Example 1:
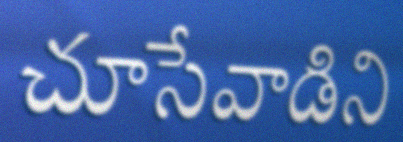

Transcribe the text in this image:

చూసేవాడిని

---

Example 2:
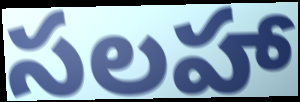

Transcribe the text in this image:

సలహా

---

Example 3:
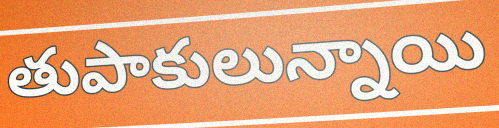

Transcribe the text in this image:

తుపాకులున్నాయి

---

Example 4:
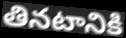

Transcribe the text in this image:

తినటానికి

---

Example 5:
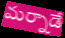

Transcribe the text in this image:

మర్నాడే